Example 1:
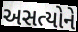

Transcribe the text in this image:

અસત્યોને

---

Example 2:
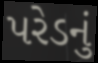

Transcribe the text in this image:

પરેડનું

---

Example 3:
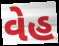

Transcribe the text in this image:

વેહ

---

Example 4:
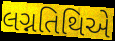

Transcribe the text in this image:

લગ્નતિથિએ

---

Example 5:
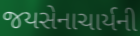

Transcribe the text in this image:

જયસેનાચાર્યની